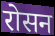
रोसन